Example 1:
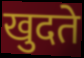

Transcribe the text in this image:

खुदते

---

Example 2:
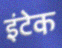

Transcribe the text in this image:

इंटेक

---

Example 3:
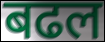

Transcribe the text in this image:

बढल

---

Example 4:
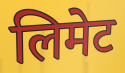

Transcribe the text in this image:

लिमेट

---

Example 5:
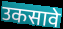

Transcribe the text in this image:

उकसावे